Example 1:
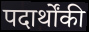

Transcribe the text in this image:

पदार्थोंकी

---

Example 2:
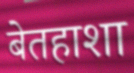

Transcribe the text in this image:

बेतहाशा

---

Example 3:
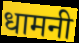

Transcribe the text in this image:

धामनी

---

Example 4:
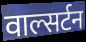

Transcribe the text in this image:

वाल्सर्टन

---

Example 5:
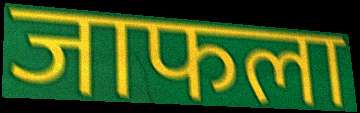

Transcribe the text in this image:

जाफला